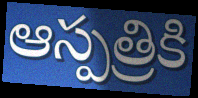
ఆస్పత్రికి